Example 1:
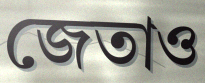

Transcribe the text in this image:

জেতাও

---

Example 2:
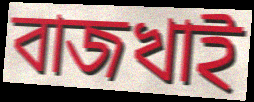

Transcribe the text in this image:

বাজখাই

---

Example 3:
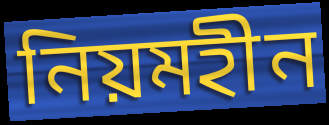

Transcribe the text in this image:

নিয়মহীন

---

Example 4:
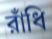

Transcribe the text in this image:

রাঁধি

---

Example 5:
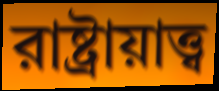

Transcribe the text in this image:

রাষ্ট্রায়াত্ত্ব